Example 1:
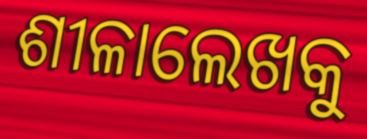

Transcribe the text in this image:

ଶୀଳାଲେଖକୁ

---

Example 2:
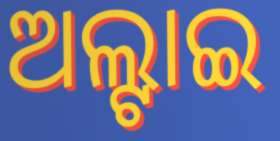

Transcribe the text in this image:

ଅଲ୍ଟାଇ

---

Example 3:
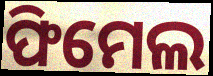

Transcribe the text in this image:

ଫିମେଲ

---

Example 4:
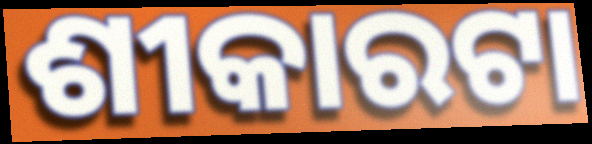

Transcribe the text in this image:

ଶୀକାରଟା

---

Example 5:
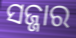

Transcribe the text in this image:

ସଜ୍ଜାର